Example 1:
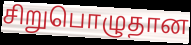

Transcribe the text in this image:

சிறுபொழுதான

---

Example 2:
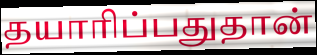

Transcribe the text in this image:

தயாரிப்பதுதான்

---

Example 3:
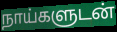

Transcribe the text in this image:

நாய்களுடன்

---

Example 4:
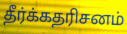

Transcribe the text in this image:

தீர்க்கதரிசனம்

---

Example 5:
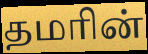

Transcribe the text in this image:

தமரின்